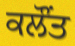
ਕਲੌਂਤ